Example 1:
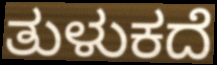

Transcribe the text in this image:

ತುಳುಕದೆ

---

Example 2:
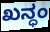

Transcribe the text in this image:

ಖನ್ಧಂ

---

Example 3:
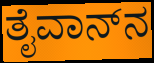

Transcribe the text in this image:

ತೈವಾನ್‌ನ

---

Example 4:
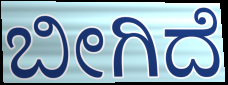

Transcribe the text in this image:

ಬೀಗಿದೆ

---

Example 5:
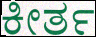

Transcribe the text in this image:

ಕೀರ್ತ